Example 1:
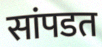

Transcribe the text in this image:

सांपडत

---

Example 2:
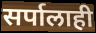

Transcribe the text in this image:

सर्पालाही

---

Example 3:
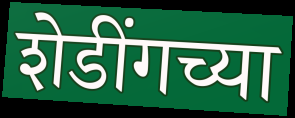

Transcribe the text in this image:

शेडींगच्या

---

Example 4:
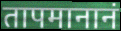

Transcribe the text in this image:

तापमानानं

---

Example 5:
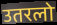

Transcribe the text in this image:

उतरलो